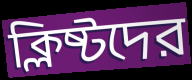
ক্লিষ্টদের